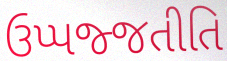
ઉપ્પજ્જતીતિ